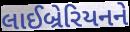
લાઈબ્રેરિયનને